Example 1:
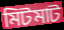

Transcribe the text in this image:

মিটমাট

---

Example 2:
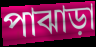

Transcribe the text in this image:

পাঝাড়া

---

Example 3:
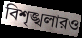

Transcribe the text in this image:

বিশৃঙ্খলারও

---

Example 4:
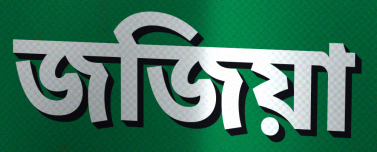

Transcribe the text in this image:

জজিয়া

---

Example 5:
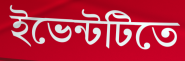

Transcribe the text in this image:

ইভেন্টটিতে